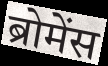
ब्रोमेंस